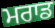
ਮਰਾਡ